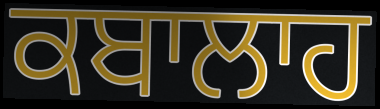
ਕਬਾਲਾਹ